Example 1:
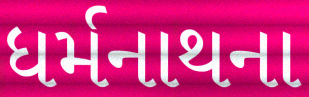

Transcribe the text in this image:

ધર્મનાથના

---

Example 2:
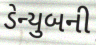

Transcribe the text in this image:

ડેન્યુબની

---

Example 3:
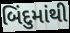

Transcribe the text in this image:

બિંદુમાંથી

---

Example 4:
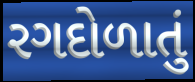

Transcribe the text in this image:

રગદોળાતું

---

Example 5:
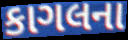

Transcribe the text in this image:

કાગલના